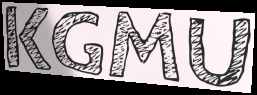
KGMU